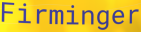
Firminger